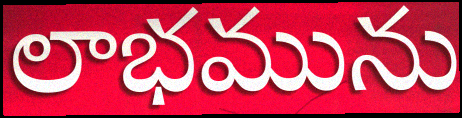
లాభమును